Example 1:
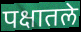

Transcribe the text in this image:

पक्षातले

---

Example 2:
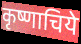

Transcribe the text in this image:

कृष्णाचिये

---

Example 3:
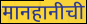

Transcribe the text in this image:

मानहानीची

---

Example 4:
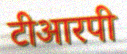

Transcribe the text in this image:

टीआरपी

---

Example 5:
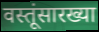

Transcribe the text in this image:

वस्तूंसारख्या